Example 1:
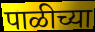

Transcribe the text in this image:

पाळीच्या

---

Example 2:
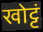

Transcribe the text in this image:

खोट्टं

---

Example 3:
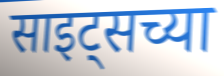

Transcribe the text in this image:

साइट्सच्या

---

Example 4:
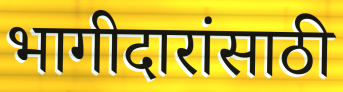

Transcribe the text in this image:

भागीदारांसाठी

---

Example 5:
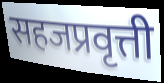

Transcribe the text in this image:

सहजप्रवृत्ती